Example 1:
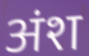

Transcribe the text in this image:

अंश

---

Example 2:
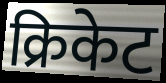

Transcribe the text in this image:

क्रिकेट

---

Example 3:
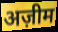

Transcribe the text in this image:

अज़ीम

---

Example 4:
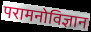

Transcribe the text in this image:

परामनोविज्ञान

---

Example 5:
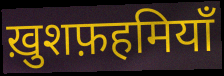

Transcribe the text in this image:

ख़ुशफ़हमियाँ